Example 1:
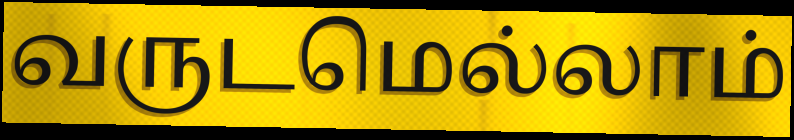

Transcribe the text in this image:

வருடமெல்லாம்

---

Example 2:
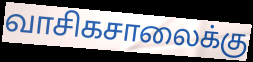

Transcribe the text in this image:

வாசிகசாலைக்கு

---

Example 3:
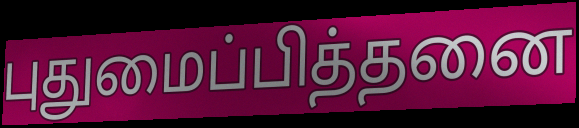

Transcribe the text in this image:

புதுமைப்பித்தனை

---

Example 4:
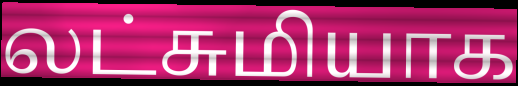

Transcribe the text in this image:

லட்சுமியாக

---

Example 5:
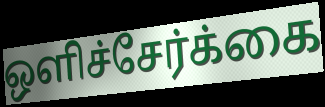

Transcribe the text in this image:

ஒளிச்சேர்க்கை